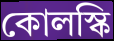
কোলস্কি